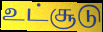
உட்சூடு